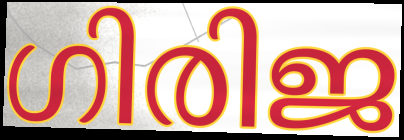
ഗിരിജ